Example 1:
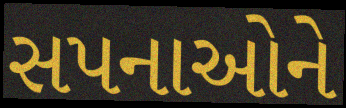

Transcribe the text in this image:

સપનાઓને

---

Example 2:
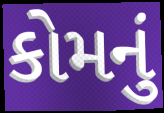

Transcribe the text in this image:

કોમનું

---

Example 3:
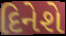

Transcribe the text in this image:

દિનેશે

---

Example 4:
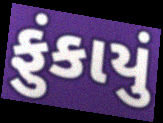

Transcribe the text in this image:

ફુંકાયું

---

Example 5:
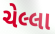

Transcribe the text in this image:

ચેલ્લા